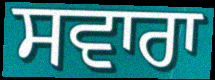
ਸਵਾਰਾ